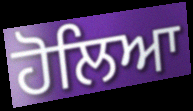
ਹੋਲਿਆ